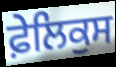
ਫ਼ੇਲਿਕੁਸ